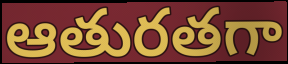
ఆతురతగా